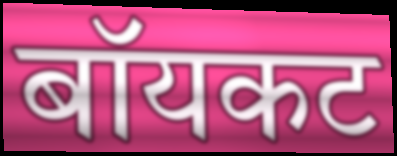
बॉयकट